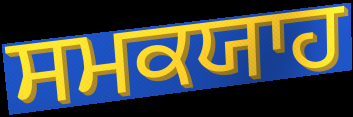
ਸਮਕਯਾਹ